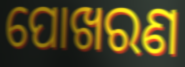
ପୋଖରଣ